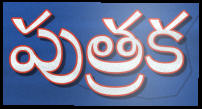
పుత్రక